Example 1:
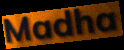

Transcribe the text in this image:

Madha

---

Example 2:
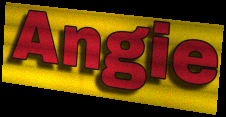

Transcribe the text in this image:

Angie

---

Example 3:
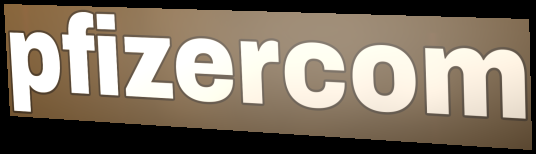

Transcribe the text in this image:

pfizercom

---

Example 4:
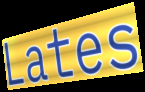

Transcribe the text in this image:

Lates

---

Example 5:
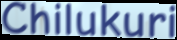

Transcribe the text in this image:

Chilukuri